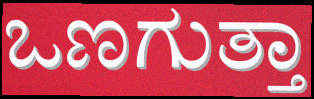
ಒಣಗುತ್ತಾ